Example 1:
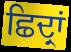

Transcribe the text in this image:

ਛਿਦ੍ਰਾਂ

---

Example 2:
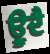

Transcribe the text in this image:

ਊੁਦੈ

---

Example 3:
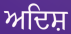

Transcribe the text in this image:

ਅਦਿਸ਼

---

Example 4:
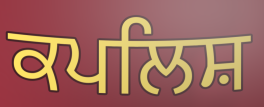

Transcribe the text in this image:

ਕਪਲਿਸ਼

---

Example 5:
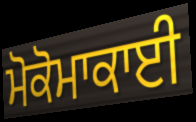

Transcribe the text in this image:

ਮੋਕੋਮਾਕਾਈ